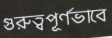
গুরুত্বপূর্ণভাবে